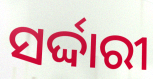
ସର୍ଦ୍ଦାରୀ